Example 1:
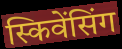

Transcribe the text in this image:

स्किवेंसिंग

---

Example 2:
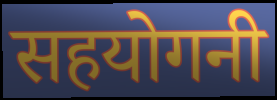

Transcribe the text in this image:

सहयोगनी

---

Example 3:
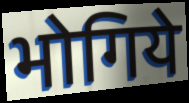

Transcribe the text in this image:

भोगिये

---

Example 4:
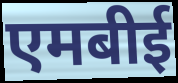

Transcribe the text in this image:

एमबीई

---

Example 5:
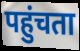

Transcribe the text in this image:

पहुंचता